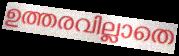
ഉത്തരവില്ലാതെ